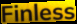
Finless